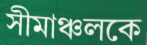
সীমাঞ্চলকে